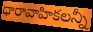
ధారావాహికలన్నీ